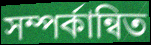
সম্পর্কান্বিত